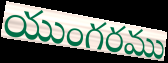
యుంగరము